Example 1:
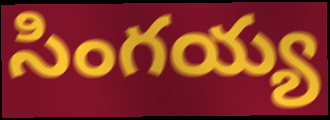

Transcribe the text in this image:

సింగయ్య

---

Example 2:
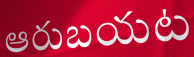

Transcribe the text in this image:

ఆరుబయట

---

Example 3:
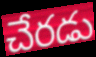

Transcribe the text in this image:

చేరడు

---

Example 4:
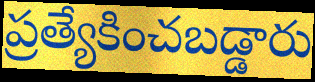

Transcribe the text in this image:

ప్రత్యేకించబడ్డారు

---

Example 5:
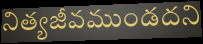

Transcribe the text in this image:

నిత్యజీవముండదని